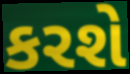
કરશે